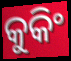
କୁକିଂ